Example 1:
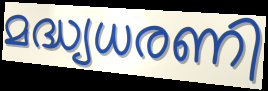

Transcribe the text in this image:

മദ്ധ്യധരണി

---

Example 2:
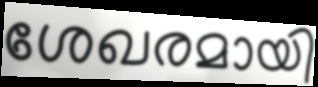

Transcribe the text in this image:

ശേഖരമായി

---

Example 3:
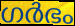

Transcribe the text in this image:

ഗർഭം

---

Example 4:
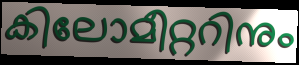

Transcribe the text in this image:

കിലോമീറ്ററിനും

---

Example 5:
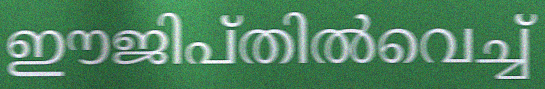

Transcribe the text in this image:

ഈജിപ്തിൽവെച്ച്